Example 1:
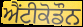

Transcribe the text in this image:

ਐਂਟੀਕੋਡੌਨ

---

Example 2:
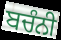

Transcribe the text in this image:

ਬਚੰਨੀ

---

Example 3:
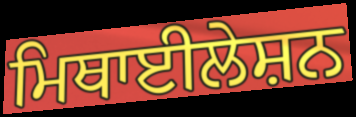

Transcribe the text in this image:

ਮਿਥਾਈਲੇਸ਼ਨ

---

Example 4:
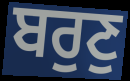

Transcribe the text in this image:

ਬਰੁਣੁ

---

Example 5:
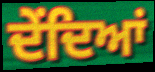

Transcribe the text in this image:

ਦੇਂਦਿਆਂ